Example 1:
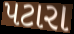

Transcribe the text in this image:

પટારા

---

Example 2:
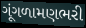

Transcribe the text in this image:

ગૂંગળામણભરી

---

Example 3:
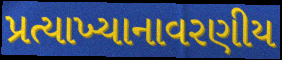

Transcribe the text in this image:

પ્રત્યાખ્યાનાવરણીય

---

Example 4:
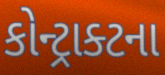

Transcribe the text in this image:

કોન્ટ્રાક્ટના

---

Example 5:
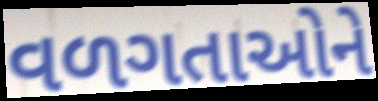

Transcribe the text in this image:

વળગતાઓને